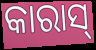
କାରାସ୍